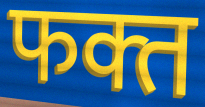
फक्‍त